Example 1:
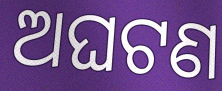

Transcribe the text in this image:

ଅଘଟଣ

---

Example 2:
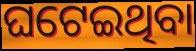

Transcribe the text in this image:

ଘଟେଇଥିବା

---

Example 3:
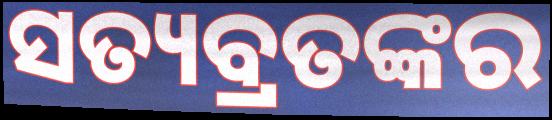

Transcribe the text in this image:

ସତ୍ୟବ୍ରତଙ୍କର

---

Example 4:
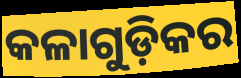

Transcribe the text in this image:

କଳାଗୁଡ଼ିକର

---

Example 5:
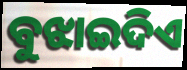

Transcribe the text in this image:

ବୁଝାଇଦିଏ